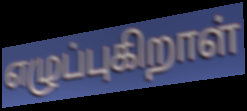
எழுப்புகிறாள்